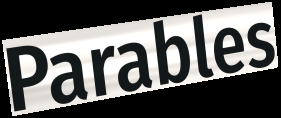
Parables